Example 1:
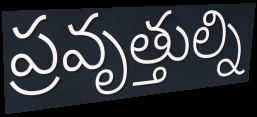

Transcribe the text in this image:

ప్రవృత్తుల్ని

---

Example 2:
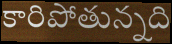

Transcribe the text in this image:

కారిపోతున్నది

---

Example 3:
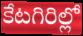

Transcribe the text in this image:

కేటగిరిల్లో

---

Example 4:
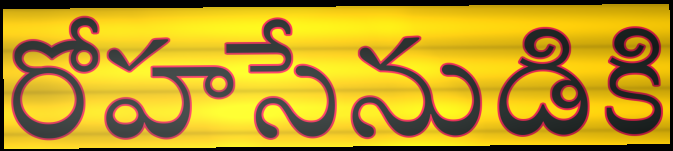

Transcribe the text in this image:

రోహసేనుడికి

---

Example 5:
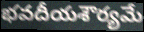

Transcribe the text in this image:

భవదీయశౌర్యమే